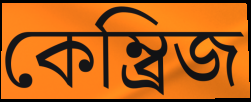
কেম্ব্ৰিজ